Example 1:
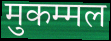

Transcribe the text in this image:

मुकम्मल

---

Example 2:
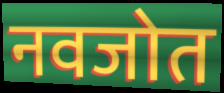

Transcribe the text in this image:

नवजोत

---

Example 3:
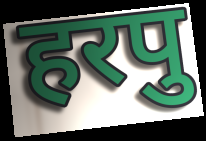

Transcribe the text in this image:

हरपु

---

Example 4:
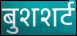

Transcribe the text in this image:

बुशशर्ट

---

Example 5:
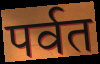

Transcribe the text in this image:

पर्वत